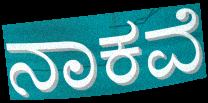
ನಾಕವೆ